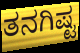
ತನಗಿಷ್ಟ